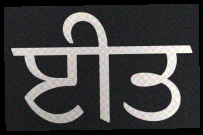
ਈਤ